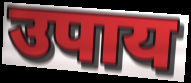
उपाय